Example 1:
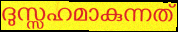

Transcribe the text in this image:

ദുസ്സഹമാകുന്നത്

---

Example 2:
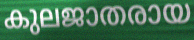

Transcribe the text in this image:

കുലജാതരായ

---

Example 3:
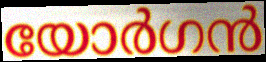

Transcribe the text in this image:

യോർഗൻ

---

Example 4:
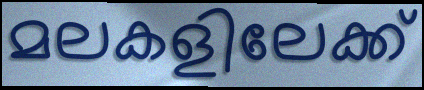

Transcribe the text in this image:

മലകളിലേക്ക്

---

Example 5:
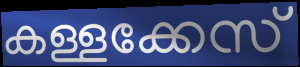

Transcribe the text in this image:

കള്ളക്കേസ്